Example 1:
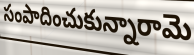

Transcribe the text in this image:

సంపాదించుకున్నారామె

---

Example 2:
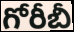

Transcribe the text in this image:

గోరీబీ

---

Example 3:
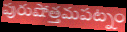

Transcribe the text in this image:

పురుషోత్తమపట్నం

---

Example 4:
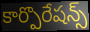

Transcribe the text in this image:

కార్పొరేషన్స్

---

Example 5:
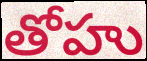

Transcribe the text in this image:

తోహు